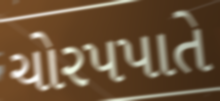
ચોરપપાતે